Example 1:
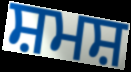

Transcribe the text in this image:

ਸ਼ਮਸ਼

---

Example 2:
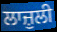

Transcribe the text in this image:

ਲਾਜ਼ੁਲੀ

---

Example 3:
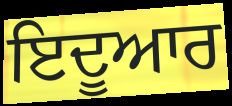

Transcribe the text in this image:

ਇਦੂਆਰ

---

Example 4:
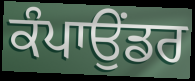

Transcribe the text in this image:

ਕੰਪਾਉਂਡਰ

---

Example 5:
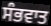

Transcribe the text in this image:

ਸੰਭਵਾਤ